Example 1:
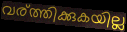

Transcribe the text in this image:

വര്ത്തിക്കുകയില്ല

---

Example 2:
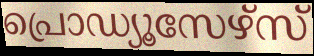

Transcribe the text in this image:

പ്രൊഡ്യൂസേഴ്സ്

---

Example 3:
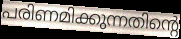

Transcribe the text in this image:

പരിണമിക്കുന്നതിന്റെ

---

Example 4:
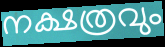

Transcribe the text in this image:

നക്ഷത്രവും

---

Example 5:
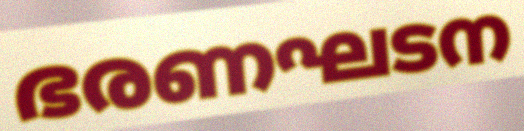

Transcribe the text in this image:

ഭരണഘടന